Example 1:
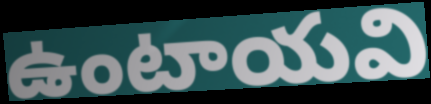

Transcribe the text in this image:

ఉంటాయవి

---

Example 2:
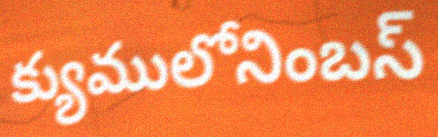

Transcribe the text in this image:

క్యుములోనింబస్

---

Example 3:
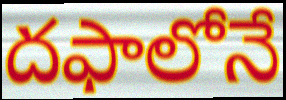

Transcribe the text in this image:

దఫాలోనే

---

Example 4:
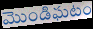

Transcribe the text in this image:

మొండిఘటం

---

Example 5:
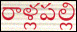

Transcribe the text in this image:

రాళ్లపల్లి